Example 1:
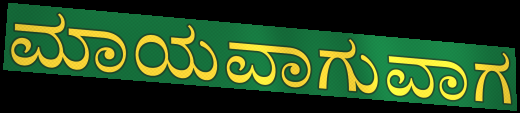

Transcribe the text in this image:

ಮಾಯವಾಗುವಾಗ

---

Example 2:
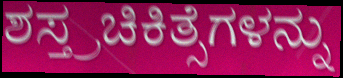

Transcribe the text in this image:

ಶಸ್ತ್ರಚಿಕಿತ್ಸೆಗಳನ್ನು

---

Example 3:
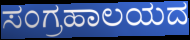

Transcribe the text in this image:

ಸಂಗ್ರಹಾಲಯದ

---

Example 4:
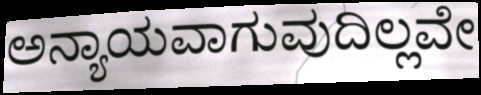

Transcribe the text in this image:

ಅನ್ಯಾಯವಾಗುವುದಿಲ್ಲವೇ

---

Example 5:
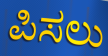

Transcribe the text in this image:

ಪಿಸಲು